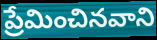
ప్రేమించినవాని